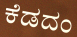
ಕೆಡದಂ